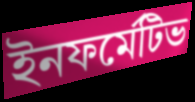
ইনফর্মেটিভ